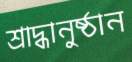
শ্রাদ্ধানুষ্ঠান